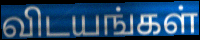
விடயங்கள்